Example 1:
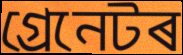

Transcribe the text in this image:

গ্ৰেনেটৰ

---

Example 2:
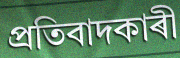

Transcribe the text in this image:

প্ৰতিবাদকাৰী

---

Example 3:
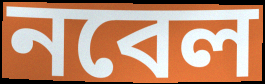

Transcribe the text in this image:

নবেল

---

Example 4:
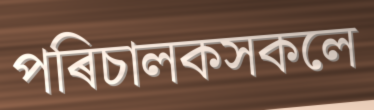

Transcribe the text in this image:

পৰিচালকসকলে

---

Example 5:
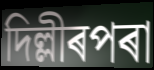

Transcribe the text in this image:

দিল্লীৰপৰা